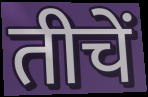
तीचें